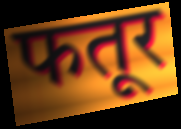
फतूर